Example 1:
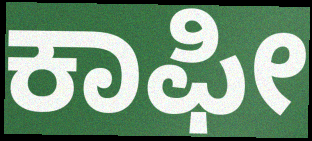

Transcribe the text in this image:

ಕಾಫೀ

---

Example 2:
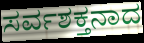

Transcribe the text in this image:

ಸರ್ವಶಕ್ತನಾದ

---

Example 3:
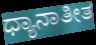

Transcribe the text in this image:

ಧ್ಯಾನಾತೀತ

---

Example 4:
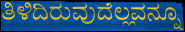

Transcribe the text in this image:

ತಿಳಿದಿರುವುದೆಲ್ಲವನ್ನೂ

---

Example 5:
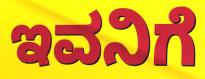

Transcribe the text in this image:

ಇವನಿಗೆ